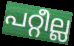
പറ്റീല്ല